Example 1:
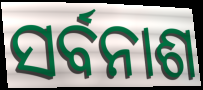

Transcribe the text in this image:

ସର୍ବନାଶ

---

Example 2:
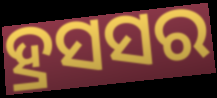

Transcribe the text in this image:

ହ୍ରସସର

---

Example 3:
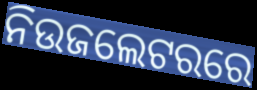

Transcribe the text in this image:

ନିଉଜଲେଟରରେ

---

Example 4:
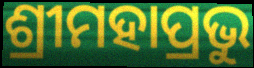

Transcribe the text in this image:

ଶ୍ରୀମହାପ୍ରଭୁ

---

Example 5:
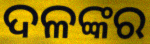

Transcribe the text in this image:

ଦଳଙ୍କର